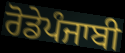
ਰੋਡੇਪੰਜਾਬੀ